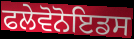
ਫਲੇਵੋਨੋਇਡਸ